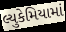
લ્યુકેમિયામાં